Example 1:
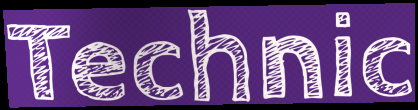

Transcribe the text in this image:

Technic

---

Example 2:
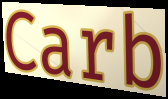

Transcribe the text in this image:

Carb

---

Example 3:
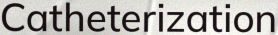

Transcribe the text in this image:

Catheterization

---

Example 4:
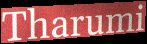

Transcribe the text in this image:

Tharumi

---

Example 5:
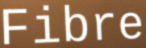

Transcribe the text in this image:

Fibre